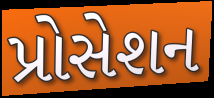
પ્રોસેશન